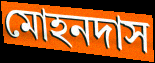
মোহনদাস